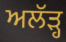
ਅਲੱੜ੍ਹ